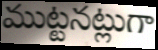
ముట్టనట్లుగా